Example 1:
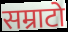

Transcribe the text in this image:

सम्राटो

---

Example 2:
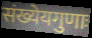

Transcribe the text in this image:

संख्येयगुणाः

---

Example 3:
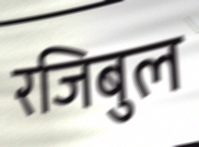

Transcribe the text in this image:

रजिबुल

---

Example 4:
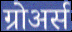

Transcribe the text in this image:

ग्रोअर्स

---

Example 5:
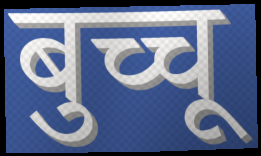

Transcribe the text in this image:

बुच्चू